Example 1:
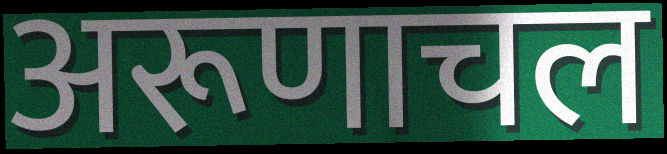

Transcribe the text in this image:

अरूणाचल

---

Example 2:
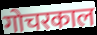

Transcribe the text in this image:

गोचरकाल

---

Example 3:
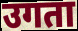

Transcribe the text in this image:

उगता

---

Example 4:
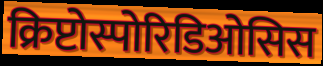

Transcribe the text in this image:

क्रिप्टोस्पोरिडिओसिस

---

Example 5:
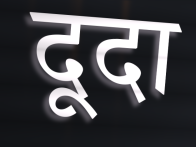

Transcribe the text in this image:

दूदा